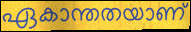
ഏകാന്തതയാണ്